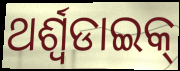
ଥର୍ଶ୍ଵଡାଇକ୍